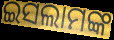
ଇସଲାମଙ୍କ